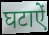
घटाऐं